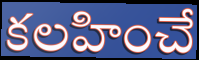
కలహించే